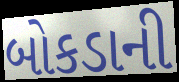
બોકડાની